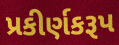
પ્રકીર્ણકરૂપ